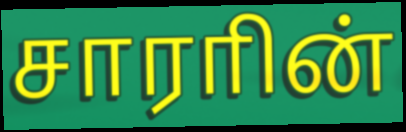
சாரரின்